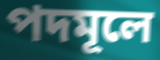
পদমূলে